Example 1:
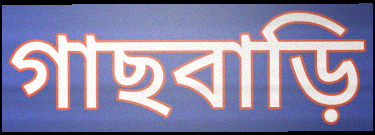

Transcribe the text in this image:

গাছবাড়ি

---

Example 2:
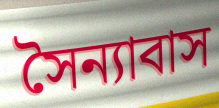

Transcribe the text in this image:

সৈন্যাবাস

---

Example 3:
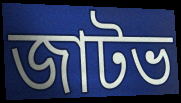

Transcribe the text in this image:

জাটভ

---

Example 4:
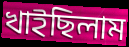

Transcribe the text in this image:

খাইছিলাম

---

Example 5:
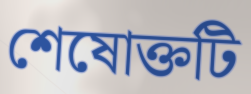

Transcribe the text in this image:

শেষোক্তটি